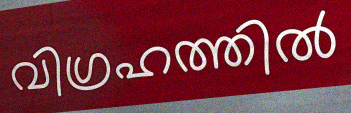
വിഗ്രഹത്തിൽ